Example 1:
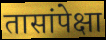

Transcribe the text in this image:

तासांपेक्षा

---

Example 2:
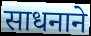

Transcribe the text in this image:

साधनाने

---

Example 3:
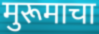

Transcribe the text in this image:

मुरूमाचा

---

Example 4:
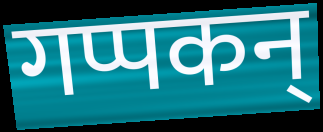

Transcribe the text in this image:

गप्पकन्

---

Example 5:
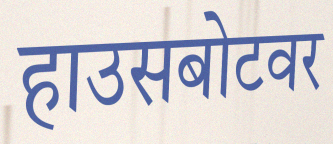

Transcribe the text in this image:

हाउसबोटवर